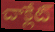
చాక్లేట్